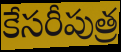
కేసరీపుత్ర